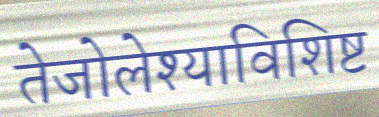
तेजोलेश्याविशिष्ट